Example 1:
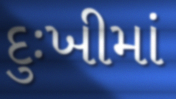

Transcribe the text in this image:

દુઃખીમાં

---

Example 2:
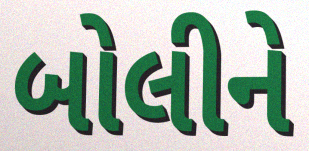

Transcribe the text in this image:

બોલીને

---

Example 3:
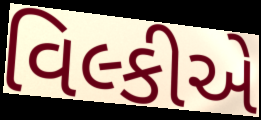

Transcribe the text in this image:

વિલ્કીએ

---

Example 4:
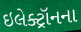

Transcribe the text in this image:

ઇલેક્ટ્રૉનના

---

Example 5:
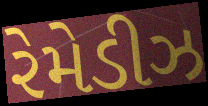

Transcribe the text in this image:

રેમેડીઝ